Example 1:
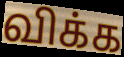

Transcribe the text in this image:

விக்க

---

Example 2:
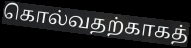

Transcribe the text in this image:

கொல்வதற்காகத்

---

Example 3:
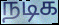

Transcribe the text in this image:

நடிக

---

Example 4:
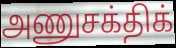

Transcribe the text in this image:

அணுசக்திக்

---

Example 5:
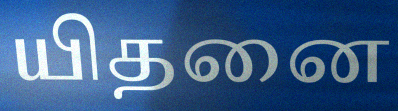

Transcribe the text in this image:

யிதனை